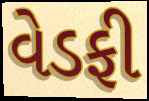
વેડફી